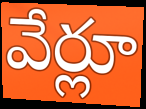
వేర్లూ